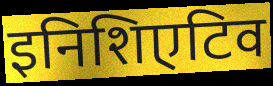
इनिशिएटिव